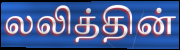
லலித்தின்